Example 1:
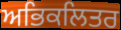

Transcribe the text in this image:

ਅਭਿਕਲਿਤਰ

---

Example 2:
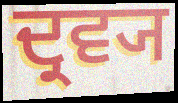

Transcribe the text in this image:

ਦ੍ਰਵ੍ਯ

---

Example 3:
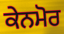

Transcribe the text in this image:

ਕੇਨਮੋਰ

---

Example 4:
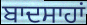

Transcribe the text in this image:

ਬਾਦਸਾਹਾਂ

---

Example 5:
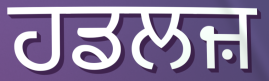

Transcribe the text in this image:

ਹਡਲਜ਼